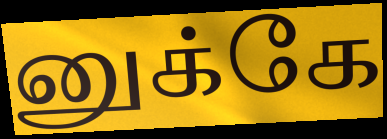
னுக்கே